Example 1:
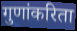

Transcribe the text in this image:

गुणांकरिता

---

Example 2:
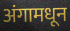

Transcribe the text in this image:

अंगामधून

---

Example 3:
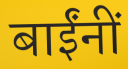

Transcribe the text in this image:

बाईंनीं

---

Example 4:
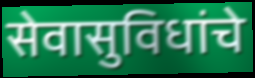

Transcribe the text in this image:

सेवासुविधांचे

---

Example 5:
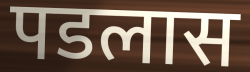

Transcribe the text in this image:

पडलास